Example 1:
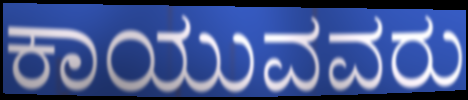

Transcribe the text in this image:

ಕಾಯುವವರು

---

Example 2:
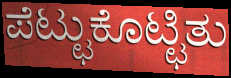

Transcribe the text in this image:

ಪೆಟ್ಟುಕೊಟ್ಟಿತು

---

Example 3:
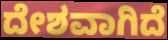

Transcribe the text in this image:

ದೇಶವಾಗಿದೆ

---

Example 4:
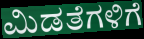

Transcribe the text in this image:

ಮಿಡತೆಗಳಿಗೆ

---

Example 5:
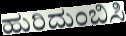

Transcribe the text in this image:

ಹುರಿದುಂಬಿಸಿ